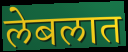
लेबलात